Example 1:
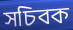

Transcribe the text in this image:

সচিবক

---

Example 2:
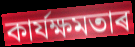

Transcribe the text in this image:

কাৰ্যক্ষমতাৰ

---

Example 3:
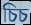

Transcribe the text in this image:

চিচ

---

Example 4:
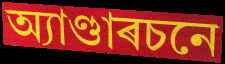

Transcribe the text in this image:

অ্যাণ্ডাৰচনে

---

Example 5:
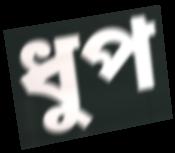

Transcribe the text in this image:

ধুপ